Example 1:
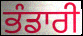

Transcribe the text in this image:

ਭੰਡਾਰੀ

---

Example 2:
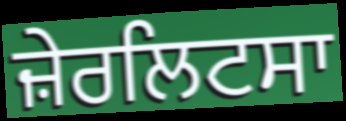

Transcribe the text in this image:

ਜ਼ੇਰਲਿਟਸਾ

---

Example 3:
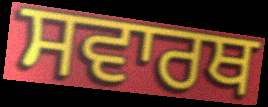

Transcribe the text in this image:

ਸਵਾਰਥ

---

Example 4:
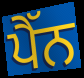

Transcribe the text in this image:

ਪੈੱਨ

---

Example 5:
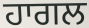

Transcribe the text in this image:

ਹਾਗਲ